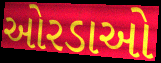
ઓરડાઓ